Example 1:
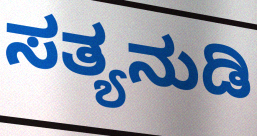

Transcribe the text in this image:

ಸತ್ಯನುಡಿ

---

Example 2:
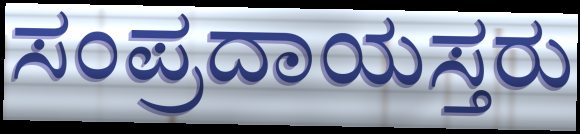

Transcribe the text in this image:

ಸಂಪ್ರದಾಯಸ್ತರು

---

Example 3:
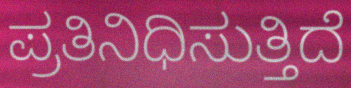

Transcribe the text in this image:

ಪ್ರತಿನಿಧಿಸುತ್ತಿದೆ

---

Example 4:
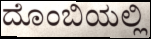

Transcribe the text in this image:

ದೊಂಬಿಯಲ್ಲಿ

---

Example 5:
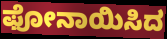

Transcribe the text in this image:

ಫೋನಾಯಿಸಿದ